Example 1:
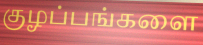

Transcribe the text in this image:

குழப்பங்களை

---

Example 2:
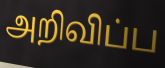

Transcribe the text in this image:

அறிவிப்ப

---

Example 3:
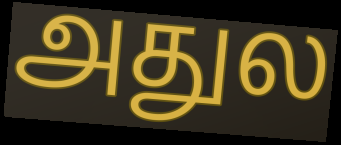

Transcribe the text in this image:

அதுல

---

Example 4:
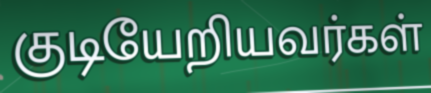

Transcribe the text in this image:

குடியேறியவர்கள்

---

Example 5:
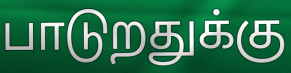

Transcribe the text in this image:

பாடுறதுக்கு